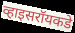
व्हाइसरॉयकडे